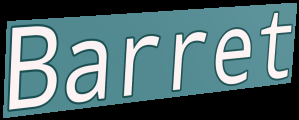
Barret